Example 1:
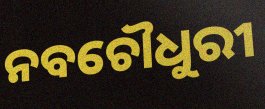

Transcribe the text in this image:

ନବଚୌଧୁରୀ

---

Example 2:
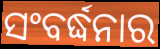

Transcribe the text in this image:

ସଂବର୍ଦ୍ଧନାର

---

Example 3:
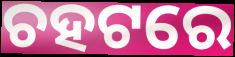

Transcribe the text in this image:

ଚହଟରେ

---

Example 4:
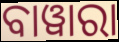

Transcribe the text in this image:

ବାୱାରା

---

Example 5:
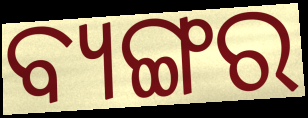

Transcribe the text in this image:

ବ୍ୟଙ୍ଗର